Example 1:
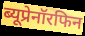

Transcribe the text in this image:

ब्यूप्रेनॉरफिन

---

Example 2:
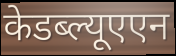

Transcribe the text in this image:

केडब्ल्यूएएन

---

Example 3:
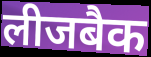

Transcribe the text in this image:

लीजबैक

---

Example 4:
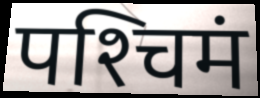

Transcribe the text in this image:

पश्चिमं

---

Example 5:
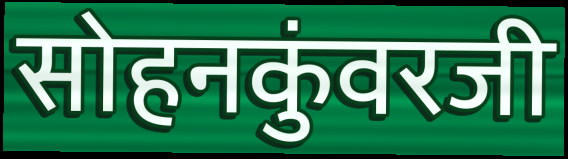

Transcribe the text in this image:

सोहनकुंवरजी